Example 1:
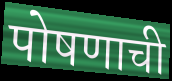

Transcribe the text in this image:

पोषणाची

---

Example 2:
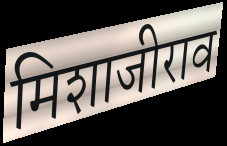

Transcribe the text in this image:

मिशाजीराव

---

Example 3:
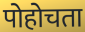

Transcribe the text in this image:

पोहोचता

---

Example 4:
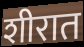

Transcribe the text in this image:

शीरात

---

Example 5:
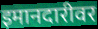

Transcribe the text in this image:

इमानदारीवर